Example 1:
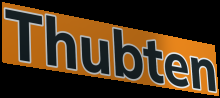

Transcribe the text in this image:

Thubten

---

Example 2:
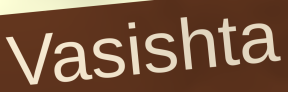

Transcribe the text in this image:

Vasishta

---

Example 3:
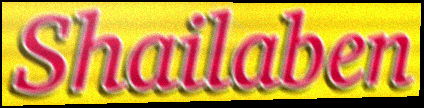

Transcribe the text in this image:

Shailaben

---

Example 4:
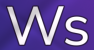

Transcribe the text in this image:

Ws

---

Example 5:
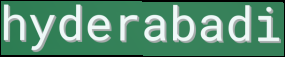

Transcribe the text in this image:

hyderabadi